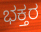
ಭಕ್ತರ